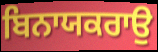
ਬਿਨਾਯਕਰਾਉ